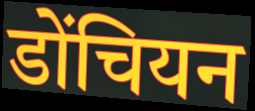
डोंचियन